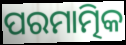
ପରମାତ୍ମିକ